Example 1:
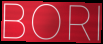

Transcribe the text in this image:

BORI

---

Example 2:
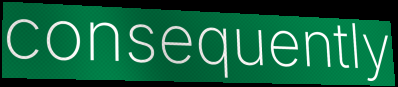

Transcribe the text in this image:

consequently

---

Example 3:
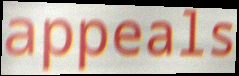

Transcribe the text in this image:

appeals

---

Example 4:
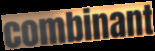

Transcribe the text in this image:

combinant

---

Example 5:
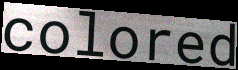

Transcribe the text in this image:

colored